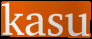
kasu